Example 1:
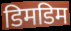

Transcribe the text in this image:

डिमडिम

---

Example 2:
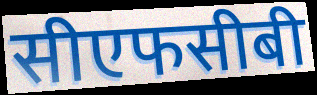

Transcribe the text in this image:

सीएफसीबी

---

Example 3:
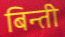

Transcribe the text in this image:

बिन्ती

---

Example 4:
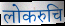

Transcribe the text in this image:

लोकरुचि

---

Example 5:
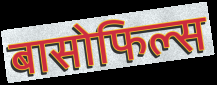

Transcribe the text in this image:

बासोफिल्स